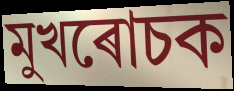
মুখৰোচক